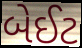
બેઈટ